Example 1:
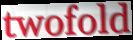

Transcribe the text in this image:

twofold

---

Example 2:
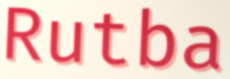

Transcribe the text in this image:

Rutba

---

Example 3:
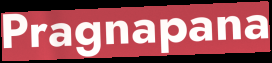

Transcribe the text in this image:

Pragnapana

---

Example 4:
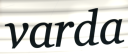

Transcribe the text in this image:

varda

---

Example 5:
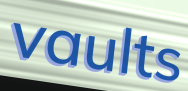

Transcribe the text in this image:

vaults